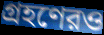
গ্রহণেরও